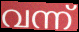
വന്ന്